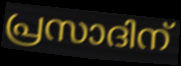
പ്രസാദിന്